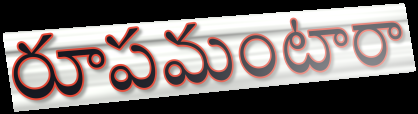
రూపమంటారా